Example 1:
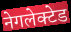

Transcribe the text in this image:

नेगलेक्टेड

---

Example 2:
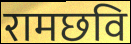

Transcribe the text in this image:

रामछवि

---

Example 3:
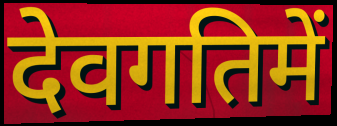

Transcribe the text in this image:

देवगतिमें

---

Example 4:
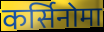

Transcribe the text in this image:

कर्सिनोमा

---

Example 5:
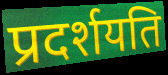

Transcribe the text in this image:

प्रदर्शयति